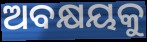
ଅବକ୍ଷୟକୁ